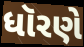
ધૉરણે